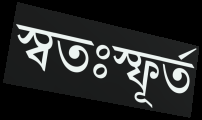
স্বতঃস্ফূর্ত